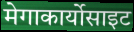
मेगाकार्योसाइट